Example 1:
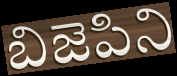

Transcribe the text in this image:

బిజెపిని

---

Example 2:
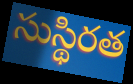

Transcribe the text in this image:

సుస్థిరత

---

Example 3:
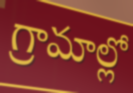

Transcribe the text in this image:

గ్రామాల్లో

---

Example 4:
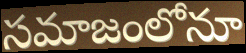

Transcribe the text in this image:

సమాజంలోనూ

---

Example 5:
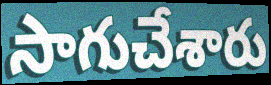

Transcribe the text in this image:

సాగుచేశారు